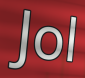
Jol